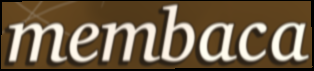
membaca